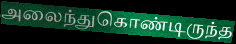
அலைந்துகொண்டிருந்த